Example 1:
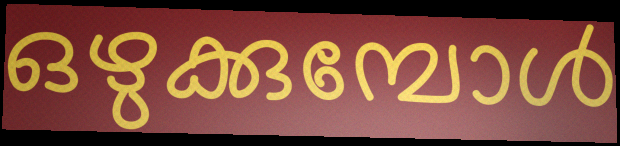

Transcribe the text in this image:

ഒഴുക്കുമ്പോൾ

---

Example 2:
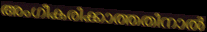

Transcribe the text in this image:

അംഗീകരിക്കാത്തതിനാൽ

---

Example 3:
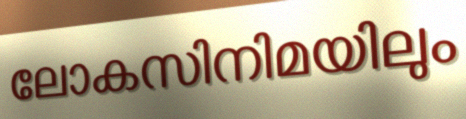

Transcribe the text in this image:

ലോകസിനിമയിലും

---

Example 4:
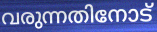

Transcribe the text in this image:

വരുന്നതിനോട്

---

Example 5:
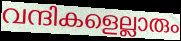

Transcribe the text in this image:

വന്ദികളെല്ലാരും